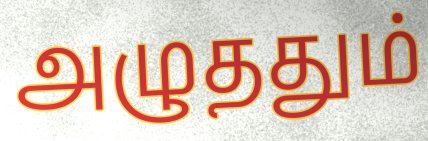
அழுததும்